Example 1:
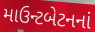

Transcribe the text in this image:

માઉન્ટબેટનનાં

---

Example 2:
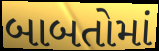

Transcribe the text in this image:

બાબતોમાં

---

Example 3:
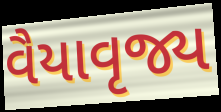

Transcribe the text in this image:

વૈયાવૃજ્ય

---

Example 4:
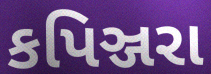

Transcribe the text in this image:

કપિઞ્જરા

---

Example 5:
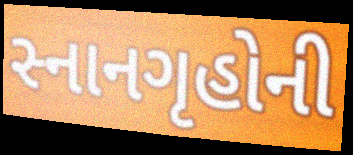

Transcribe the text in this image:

સ્નાનગૃહોની